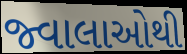
જ્વાલાઓથી